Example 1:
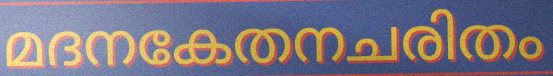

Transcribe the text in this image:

മദനകേതനചരിതം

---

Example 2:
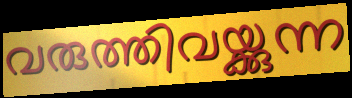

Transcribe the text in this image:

വരുത്തിവയ്ക്കുന്ന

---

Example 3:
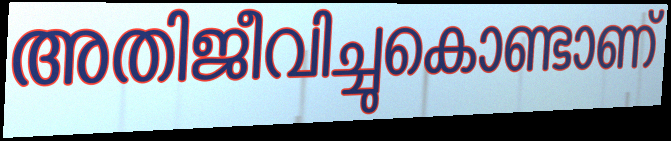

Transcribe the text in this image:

അതിജീവിച്ചുകൊണ്ടാണ്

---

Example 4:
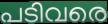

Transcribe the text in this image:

പടിവരെ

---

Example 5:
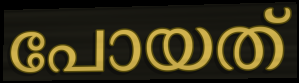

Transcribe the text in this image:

പോയത്